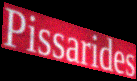
Pissarides